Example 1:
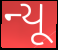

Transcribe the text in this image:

ન્યૂ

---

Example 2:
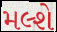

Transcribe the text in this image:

મલ્શે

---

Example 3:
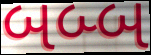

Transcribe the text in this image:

બબ્બ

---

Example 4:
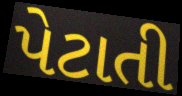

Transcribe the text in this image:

પેટાતી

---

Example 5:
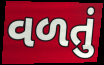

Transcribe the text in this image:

વળતું